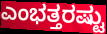
ಎಂಭತ್ತರಷ್ಟು